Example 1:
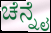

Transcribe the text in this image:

ಚೆನ್ನೈ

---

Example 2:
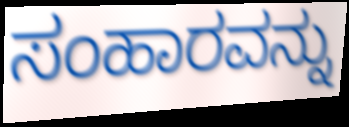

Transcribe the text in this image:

ಸಂಹಾರವನ್ನು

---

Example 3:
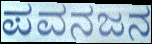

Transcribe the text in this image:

ಪವನಜನ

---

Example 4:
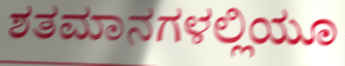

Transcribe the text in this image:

ಶತಮಾನಗಳಲ್ಲಿಯೂ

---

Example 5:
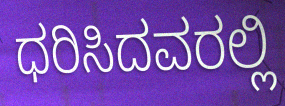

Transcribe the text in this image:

ಧರಿಸಿದವರಲ್ಲಿ